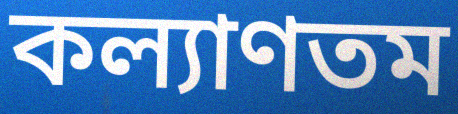
কল্যাণতম